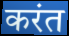
करंत